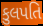
કુલપતિ